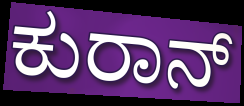
ಕುರಾನ್